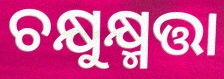
ଚକ୍ଷୁକ୍ଷ୍ମତ୍ତା